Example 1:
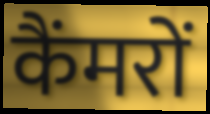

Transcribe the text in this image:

कैंमरों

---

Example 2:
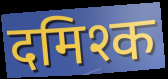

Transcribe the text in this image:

दमिश्क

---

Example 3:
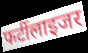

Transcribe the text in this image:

फर्टीलाइजर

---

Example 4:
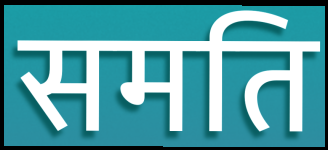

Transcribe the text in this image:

समति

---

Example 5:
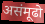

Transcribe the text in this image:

असंमूढो